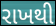
રાખથી